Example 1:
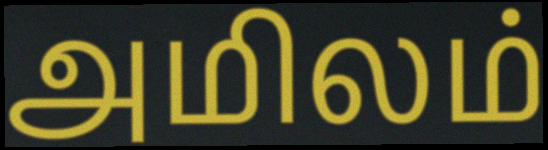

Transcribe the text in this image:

அமிலம்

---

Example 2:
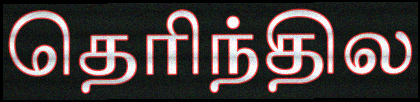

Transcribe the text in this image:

தெரிந்தில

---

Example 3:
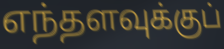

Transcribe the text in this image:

எந்தளவுக்குப்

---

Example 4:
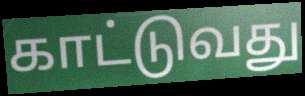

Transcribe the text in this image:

காட்டுவது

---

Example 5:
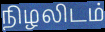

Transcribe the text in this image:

நிழலிடம்